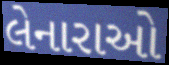
લેનારાઓ